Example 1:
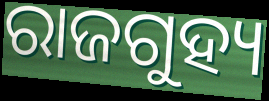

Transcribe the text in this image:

ରାଜଗୁହ୍ୟ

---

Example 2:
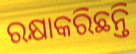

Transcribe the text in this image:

ରକ୍ଷାକରିଛନ୍ତି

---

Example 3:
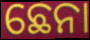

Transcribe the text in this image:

ଛେନା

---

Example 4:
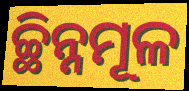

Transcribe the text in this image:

ଚ୍ଛିନ୍ନମୂଳ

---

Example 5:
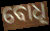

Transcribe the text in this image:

ବୋଧି